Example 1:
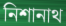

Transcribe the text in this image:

নিশানাথ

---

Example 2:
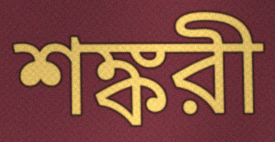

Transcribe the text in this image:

শঙ্করী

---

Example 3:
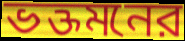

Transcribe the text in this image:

ভক্তমনের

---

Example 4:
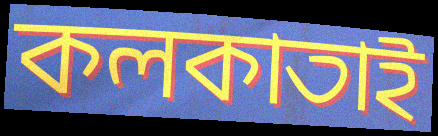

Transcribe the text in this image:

কলকাতাই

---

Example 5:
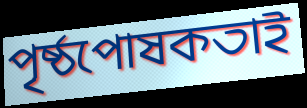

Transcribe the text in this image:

পৃষ্ঠপোষকতাই